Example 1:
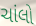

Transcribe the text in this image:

ચાંલો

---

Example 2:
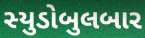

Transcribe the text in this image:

સ્યુડોબુલબાર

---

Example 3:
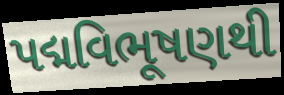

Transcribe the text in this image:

પદ્મવિભૂષણથી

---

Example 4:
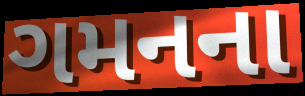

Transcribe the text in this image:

ગમનના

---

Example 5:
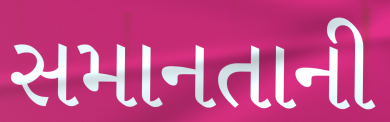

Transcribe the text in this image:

સમાનતાની